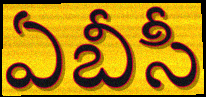
ఏబీసీ